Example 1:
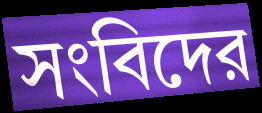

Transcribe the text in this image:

সংবিদের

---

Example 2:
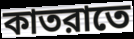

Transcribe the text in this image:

কাতরাতে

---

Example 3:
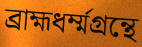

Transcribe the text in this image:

ব্রাহ্মধর্ম্মগ্রন্থে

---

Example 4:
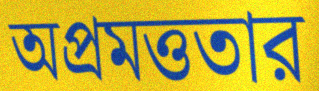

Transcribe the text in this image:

অপ্রমত্ততার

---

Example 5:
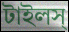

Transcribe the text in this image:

টাইলস্